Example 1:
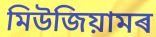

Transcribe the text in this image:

মিউজিয়ামৰ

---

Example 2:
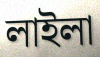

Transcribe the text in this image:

লাইলা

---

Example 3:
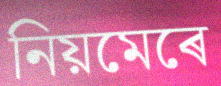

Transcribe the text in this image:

নিয়মেৰে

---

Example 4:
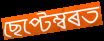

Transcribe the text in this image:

ছেপ্টেম্বৰত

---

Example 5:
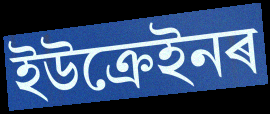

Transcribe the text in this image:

ইউক্ৰেইনৰ